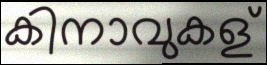
കിനാവുകള്